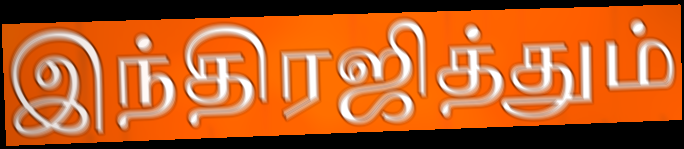
இந்திரஜித்தும்